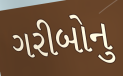
ગરીબોનુ